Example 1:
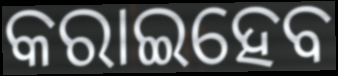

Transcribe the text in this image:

କରାଇହେବ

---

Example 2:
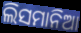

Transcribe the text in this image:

ଲିସମାନିଆ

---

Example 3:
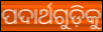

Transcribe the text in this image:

ପଦାର୍ଥଗୁଡ଼ିକୁ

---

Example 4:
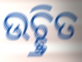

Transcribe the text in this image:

ଉଚ୍ଛ୍ରିତ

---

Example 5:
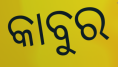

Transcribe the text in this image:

କାବୁର